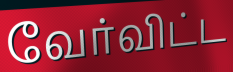
வேர்விட்ட